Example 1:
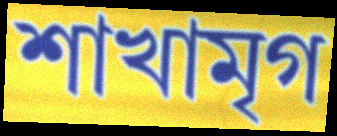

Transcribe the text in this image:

শাখামৃগ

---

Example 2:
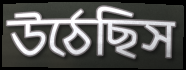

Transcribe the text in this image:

উঠেছিস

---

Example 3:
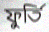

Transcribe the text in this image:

ফুর্তি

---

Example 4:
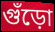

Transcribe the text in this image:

গুঁড়ো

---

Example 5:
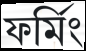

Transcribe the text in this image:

ফর্মিং